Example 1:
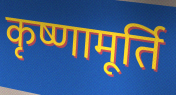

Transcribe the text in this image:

कृष्णामूर्ति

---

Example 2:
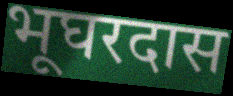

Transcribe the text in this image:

भूघरदास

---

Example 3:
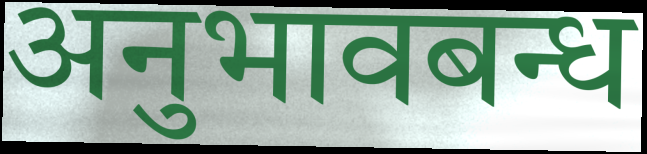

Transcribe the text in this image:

अनुभावबन्ध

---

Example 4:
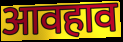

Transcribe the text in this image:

आवहाव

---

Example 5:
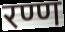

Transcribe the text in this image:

रण्ण